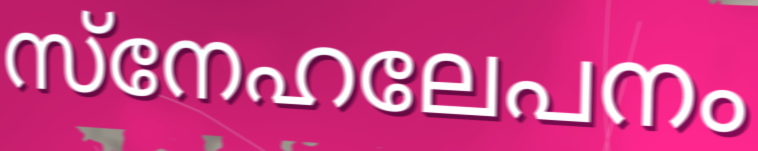
സ്നേഹലേപനം